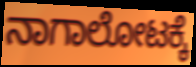
ನಾಗಾಲೋಟಕ್ಕೆ